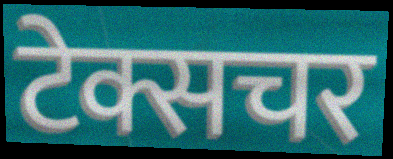
टेक्सचर